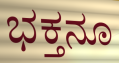
ಭಕ್ತನೂ